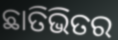
ଛାତିଭିତର